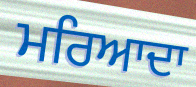
ਮਰਿਆਦਾ